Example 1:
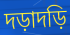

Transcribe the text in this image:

দড়াদড়ি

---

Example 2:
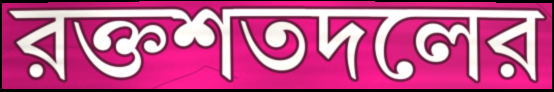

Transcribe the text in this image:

রক্তশতদলের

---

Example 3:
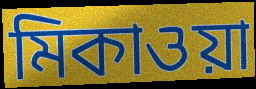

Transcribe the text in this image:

মিকাওয়া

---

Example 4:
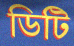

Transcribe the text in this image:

ডিটি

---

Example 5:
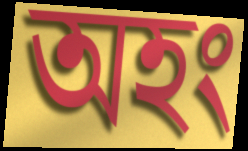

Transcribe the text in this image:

অহং